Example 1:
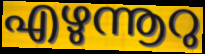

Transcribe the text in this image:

എഴുന്നൂറു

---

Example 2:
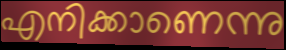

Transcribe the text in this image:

എനിക്കാണെന്നു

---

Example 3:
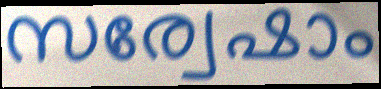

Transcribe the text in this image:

സര്വേഷാം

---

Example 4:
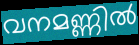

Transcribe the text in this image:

വനമണ്ണിൽ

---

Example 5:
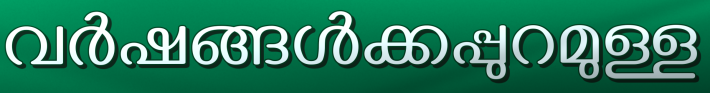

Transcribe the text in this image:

വർഷങ്ങൾക്കപ്പുറമുള്ള